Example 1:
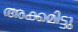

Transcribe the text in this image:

അക്കമിട്ടു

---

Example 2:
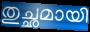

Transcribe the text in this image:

തുച്ഛമായി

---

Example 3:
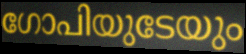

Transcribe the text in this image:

ഗോപിയുടേയും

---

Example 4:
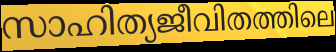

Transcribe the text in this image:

സാഹിത്യജീവിതത്തിലെ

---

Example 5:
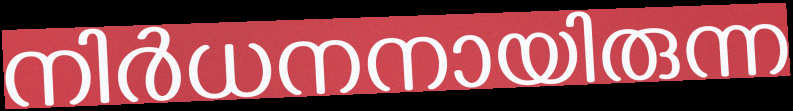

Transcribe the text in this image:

നിർധനനായിരുന്ന